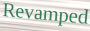
Revamped